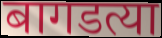
बागडत्या